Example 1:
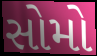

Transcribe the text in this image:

સોમો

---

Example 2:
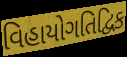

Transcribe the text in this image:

વિહાયોગતિદ્વિક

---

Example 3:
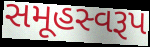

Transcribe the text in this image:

સમૂહસ્વરૂપ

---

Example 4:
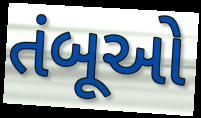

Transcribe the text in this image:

તંબૂઓ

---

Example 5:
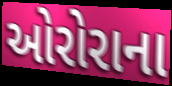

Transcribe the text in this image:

ઓરોરાના